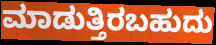
ಮಾಡುತ್ತಿರಬಹುದು